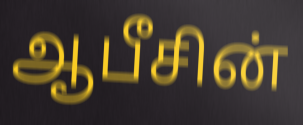
ஆபீசின்